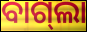
ବାଗ୍‍ଲା